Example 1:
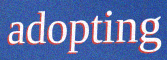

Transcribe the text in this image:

adopting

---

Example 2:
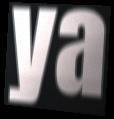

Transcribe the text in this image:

ya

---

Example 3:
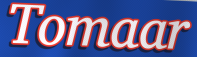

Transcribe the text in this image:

Tomaar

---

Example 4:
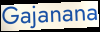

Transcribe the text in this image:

Gajanana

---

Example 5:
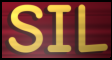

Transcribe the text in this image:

SIL